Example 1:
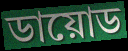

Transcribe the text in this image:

ডায়োড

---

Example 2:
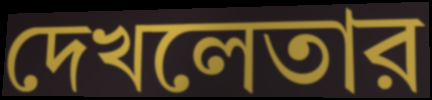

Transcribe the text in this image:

দেখলেতার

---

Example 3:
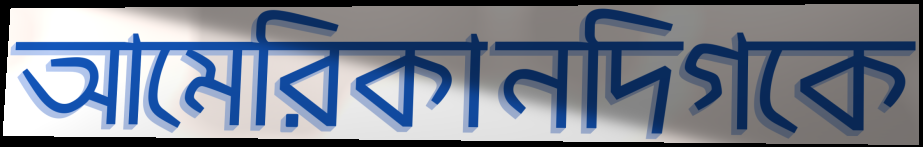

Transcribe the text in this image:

আমেরিকানদিগকে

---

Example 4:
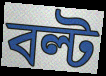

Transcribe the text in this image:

বল্ট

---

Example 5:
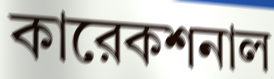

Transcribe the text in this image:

কারেকশনাল